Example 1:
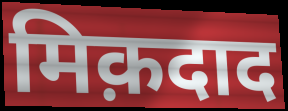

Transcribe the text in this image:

मिक़दाद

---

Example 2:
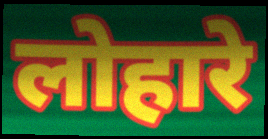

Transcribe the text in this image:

लोहारे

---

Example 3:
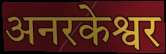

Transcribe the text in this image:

अनरकेश्वर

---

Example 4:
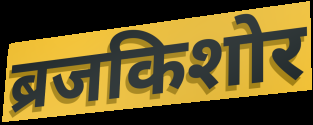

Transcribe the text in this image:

ब्रजकिशोर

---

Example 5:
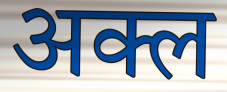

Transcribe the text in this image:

अक्ल